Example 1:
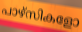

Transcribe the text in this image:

പാഴ്സികളോ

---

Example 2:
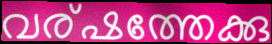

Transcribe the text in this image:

വര്ഷത്തേക്കു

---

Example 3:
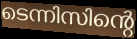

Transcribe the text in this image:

ടെന്നിസിന്റെ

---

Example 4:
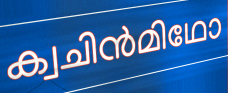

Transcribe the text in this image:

ക്വചിൻമിഥോ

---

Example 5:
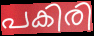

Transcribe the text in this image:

പകിരി